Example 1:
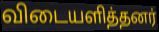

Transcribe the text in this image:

விடையளித்தனர்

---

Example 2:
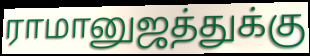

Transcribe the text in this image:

ராமானுஜத்துக்கு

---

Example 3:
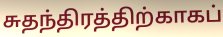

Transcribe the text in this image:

சுதந்திரத்திற்காகப்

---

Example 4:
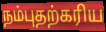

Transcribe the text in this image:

நம்புதற்கரிய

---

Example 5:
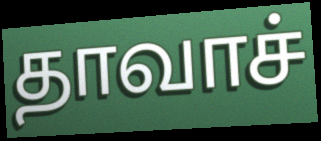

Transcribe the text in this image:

தாவாச்